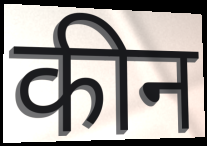
कीन